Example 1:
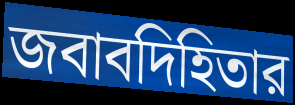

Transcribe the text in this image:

জবাবদিহিতার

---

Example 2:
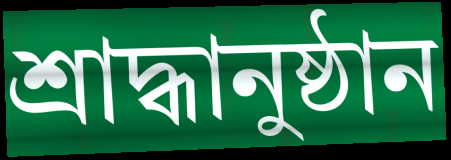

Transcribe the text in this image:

শ্রাদ্ধানুষ্ঠান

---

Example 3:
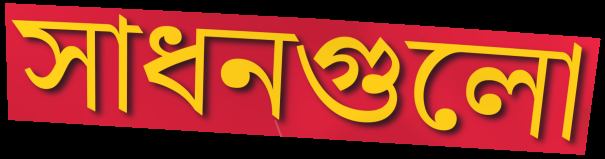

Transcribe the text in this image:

সাধনগুলো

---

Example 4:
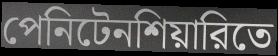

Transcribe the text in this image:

পেনিটেনশিয়ারিতে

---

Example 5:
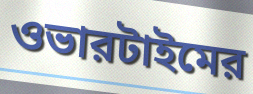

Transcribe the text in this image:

ওভারটাইমের